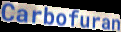
Carbofuran